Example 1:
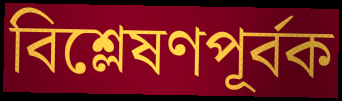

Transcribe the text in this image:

বিশ্লেষণপূর্বক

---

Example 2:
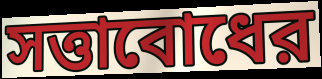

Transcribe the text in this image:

সত্তাবোধের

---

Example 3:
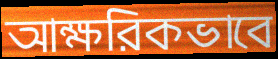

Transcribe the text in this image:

আক্ষরিকভাবে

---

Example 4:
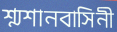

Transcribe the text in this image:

শ্মশানবাসিনী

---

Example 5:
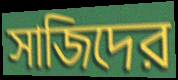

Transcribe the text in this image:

সাজিদের